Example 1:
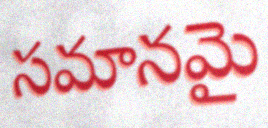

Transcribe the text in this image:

సమానమై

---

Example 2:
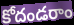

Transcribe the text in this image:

కోదండరాం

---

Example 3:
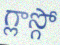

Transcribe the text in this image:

గ్లాస్గో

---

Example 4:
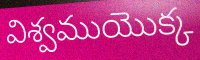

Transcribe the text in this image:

విశ్వముయొక్క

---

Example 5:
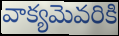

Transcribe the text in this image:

వాక్యమెవరికి